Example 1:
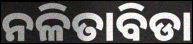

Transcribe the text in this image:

ନଳିତାବିଡା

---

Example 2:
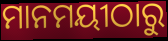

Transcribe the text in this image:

ମାନମୟୀଠାରୁ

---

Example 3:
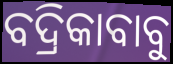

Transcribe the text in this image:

ବଦ୍ରିକାବାବୁ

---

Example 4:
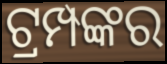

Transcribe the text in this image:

ଟ୍ରମ୍ପଙ୍କର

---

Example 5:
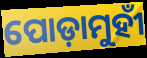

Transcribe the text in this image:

ପୋଡ଼ାମୁହୀଁ